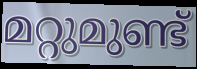
മറ്റുമുണ്ട്